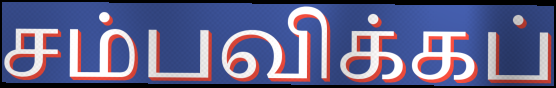
சம்பவிக்கப்